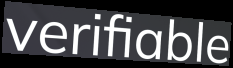
verifiable